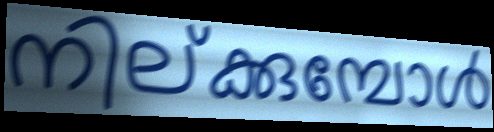
നില്ക്കുമ്പോൾ